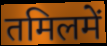
तमिलमें